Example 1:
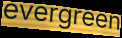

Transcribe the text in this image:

evergreen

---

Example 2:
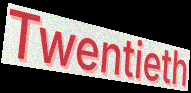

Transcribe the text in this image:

Twentieth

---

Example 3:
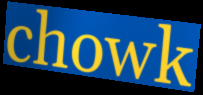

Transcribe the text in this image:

chowk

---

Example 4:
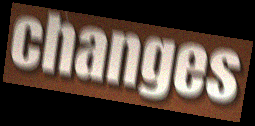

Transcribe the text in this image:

changes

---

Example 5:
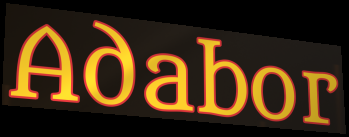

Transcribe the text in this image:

Adabor